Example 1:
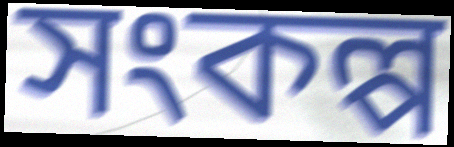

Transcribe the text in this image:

সংকল্প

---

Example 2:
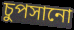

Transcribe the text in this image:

চুপসানো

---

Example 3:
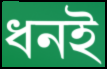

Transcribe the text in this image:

ধনই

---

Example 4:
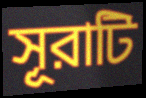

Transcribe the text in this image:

সূরাটি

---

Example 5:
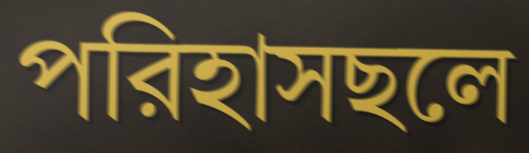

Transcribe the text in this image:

পরিহাসছলে